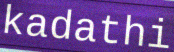
kadathi